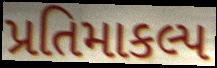
પ્રતિમાકલ્પ